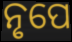
ନୃପେ